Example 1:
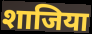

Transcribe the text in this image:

शाजिया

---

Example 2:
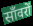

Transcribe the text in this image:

साँवरों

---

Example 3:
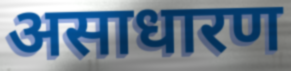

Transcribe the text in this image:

असाधारण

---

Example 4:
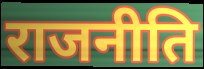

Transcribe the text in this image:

राजनीति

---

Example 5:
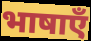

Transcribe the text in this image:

भाषाएँ